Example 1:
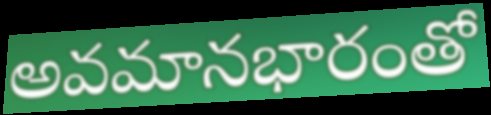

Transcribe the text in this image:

అవమానభారంతో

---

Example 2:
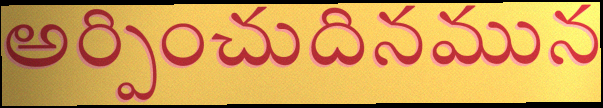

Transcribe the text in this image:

అర్పించుదినమున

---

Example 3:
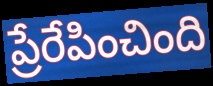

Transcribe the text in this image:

ప్రేరేపించింది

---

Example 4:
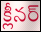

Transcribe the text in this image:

క్లీనర్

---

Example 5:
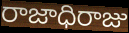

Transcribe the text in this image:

రాజాధిరాజు